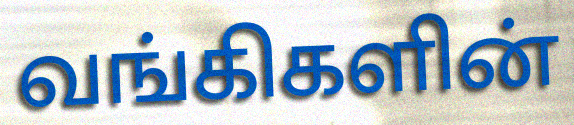
வங்கிகளின்